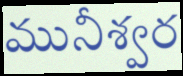
మునీశ్వర